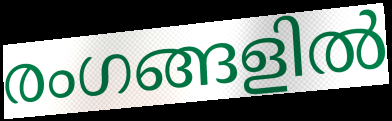
രംഗങ്ങളിൽ